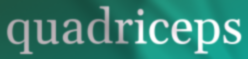
quadriceps